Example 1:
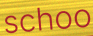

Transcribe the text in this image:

schoo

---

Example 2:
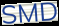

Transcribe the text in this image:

SMD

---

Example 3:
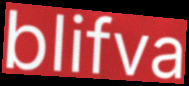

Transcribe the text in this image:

blifva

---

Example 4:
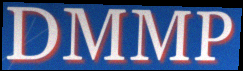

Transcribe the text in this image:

DMMP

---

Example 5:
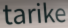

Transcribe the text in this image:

tarike